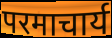
परमाचार्य